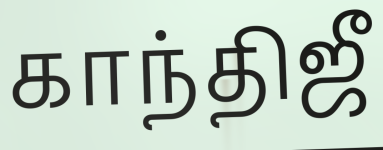
காந்திஜீ